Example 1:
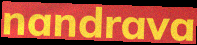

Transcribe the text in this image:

nandrava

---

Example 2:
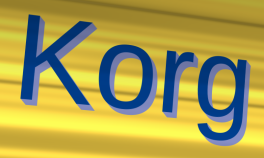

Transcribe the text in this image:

Korg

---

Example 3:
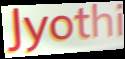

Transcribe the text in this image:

Jyothi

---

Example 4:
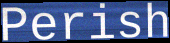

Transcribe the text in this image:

Perish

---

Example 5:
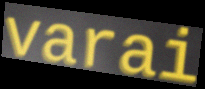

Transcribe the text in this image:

varai